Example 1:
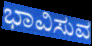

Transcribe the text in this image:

ಭಾವಿಸುವ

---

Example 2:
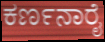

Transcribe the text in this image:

ಕರ್ಣನಾರೈ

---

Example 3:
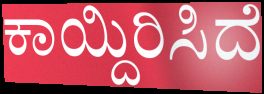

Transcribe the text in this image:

ಕಾಯ್ದಿರಿಸಿದೆ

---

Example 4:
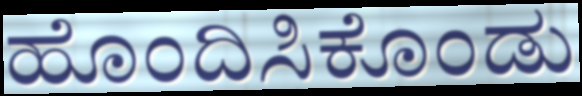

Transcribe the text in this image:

ಹೊಂದಿಸಿಕೊಂಡು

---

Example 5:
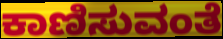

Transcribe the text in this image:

ಕಾಣಿಸುವಂತೆ